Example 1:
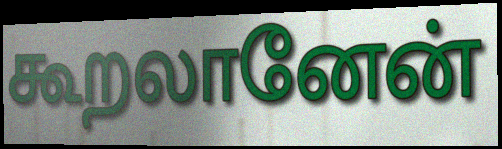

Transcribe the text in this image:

கூறலானேன்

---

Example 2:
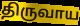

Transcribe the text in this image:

திருவாய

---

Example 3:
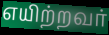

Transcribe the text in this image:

எயிற்றவர்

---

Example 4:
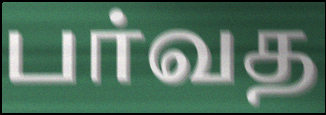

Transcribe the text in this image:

பர்வத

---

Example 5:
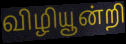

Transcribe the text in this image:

விழியூன்றி